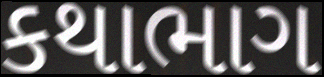
કથાભાગ